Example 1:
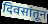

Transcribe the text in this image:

दिवसांतून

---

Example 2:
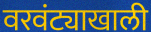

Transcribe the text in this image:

वरवंट्याखाली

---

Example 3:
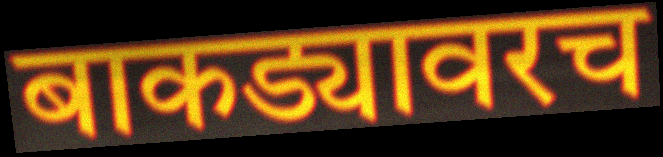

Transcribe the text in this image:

बाकड्यावरच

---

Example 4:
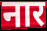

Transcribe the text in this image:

नार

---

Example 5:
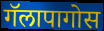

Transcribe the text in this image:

गॅलापागोस